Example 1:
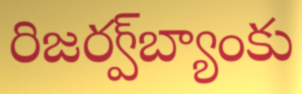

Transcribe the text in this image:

రిజర్వ్‌బ్యాంకు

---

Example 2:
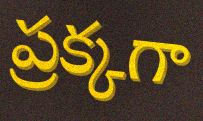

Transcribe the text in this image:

ప్రక్కగా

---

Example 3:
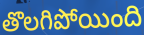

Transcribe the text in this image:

తొలగిపోయింది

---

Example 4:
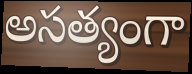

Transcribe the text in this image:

అసత్యంగా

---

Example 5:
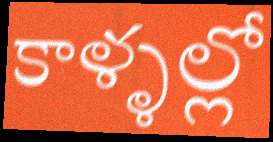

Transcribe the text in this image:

కాళ్ళల్లో